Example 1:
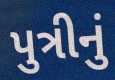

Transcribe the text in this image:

પુત્રીનું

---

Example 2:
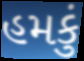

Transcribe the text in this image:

હમકું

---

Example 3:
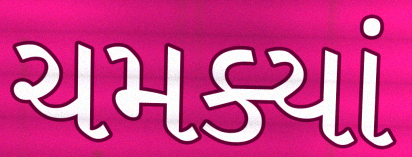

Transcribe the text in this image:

ચમક્યાં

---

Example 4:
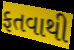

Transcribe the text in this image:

ફતવાથી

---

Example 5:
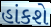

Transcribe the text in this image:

હાંકશે